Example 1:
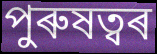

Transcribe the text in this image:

পুৰুষত্বৰ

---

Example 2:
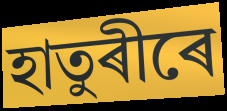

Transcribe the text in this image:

হাতুৰীৰে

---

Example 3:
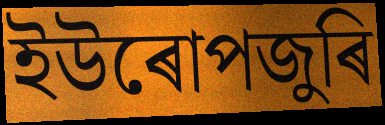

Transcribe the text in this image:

ইউৰোপজুৰি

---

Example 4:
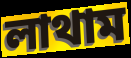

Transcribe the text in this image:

লাথাম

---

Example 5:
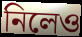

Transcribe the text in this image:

নিলেও